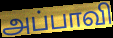
அப்பாவி